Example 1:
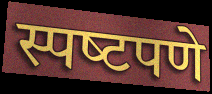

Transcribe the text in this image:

स्‍पष्‍टपणे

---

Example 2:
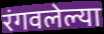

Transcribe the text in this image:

रंगवलेल्या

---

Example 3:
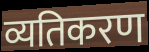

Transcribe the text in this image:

व्यतिकरण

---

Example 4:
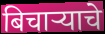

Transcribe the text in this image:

बिचाऱ्याचे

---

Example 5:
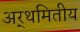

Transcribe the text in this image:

अर्थमितीय